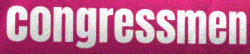
congressmen